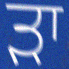
ੜਾ